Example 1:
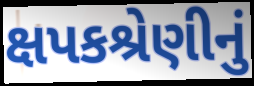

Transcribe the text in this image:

ક્ષપકશ્રેણીનું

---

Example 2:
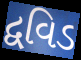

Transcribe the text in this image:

દ્વવિડ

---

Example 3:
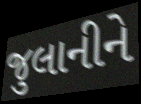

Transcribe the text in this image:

જુલાનીને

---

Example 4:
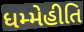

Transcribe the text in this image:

ધમ્મેહીતિ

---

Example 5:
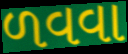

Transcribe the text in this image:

ળવવા